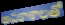
అవకాశాలతో